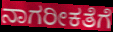
ನಾಗರೀಕತೆಗೆ